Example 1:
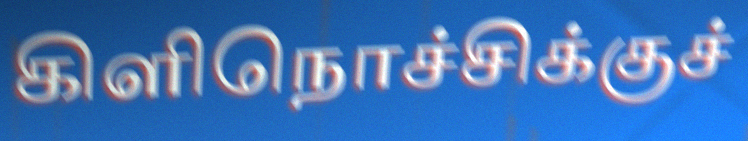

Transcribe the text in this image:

கிளிநொச்சிக்குச்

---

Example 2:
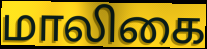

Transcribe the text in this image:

மாலிகை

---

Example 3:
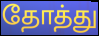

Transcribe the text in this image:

தோத்து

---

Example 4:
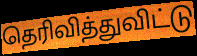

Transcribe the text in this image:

தெரிவித்துவிட்டு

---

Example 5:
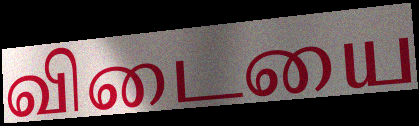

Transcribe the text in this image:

விடையை